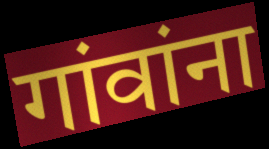
गांवांना